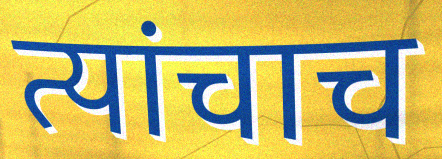
त्यांचाच